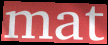
mat